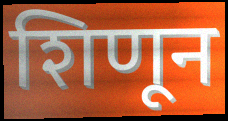
शिणून